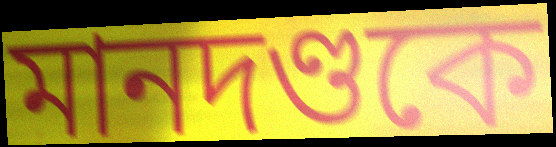
মানদণ্ডকে